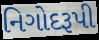
નિગોદરૂપી